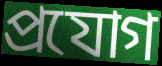
প্ৰযোগ